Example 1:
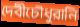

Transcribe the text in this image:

দেবীচৌধুরানি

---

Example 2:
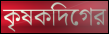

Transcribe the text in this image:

কৃষকদিগের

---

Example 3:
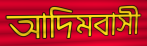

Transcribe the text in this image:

আদিমবাসী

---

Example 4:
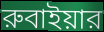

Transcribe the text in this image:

রুবাইয়ার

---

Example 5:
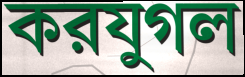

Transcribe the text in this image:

করযুগল